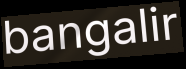
bangalir